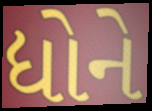
દ્યોને